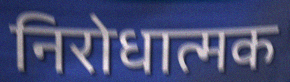
निरोधात्मक